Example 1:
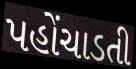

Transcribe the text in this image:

પહોંચાડતી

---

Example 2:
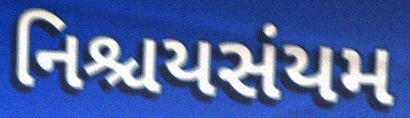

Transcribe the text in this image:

નિશ્ચયસંયમ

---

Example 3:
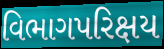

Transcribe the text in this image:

વિભાગપરિક્ષય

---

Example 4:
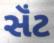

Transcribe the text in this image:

સૅંટ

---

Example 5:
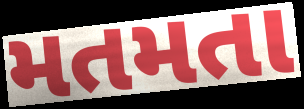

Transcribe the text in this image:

મતમતા